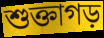
শুক্তাগড়